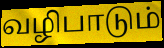
வழிபாடும்